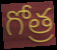
గోత్ర